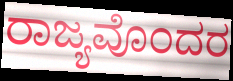
ರಾಜ್ಯವೊಂದರ